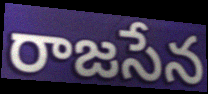
రాజసేన